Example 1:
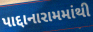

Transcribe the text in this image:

પાદ્દાનારામમાંથી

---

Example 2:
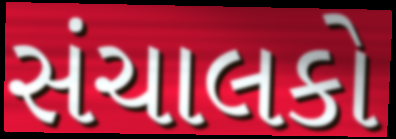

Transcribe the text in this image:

સંચાલકો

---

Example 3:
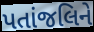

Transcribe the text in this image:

પતાંજલિને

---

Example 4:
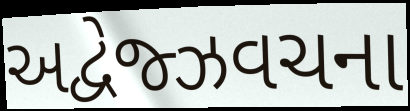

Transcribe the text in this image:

અદ્વેજ્ઝવચના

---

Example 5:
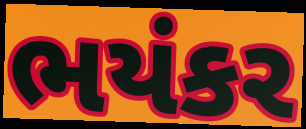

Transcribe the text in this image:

ભયંકર